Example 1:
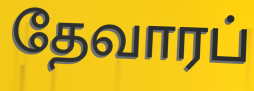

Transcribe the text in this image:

தேவாரப்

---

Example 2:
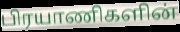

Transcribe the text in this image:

பிரயாணிகளின்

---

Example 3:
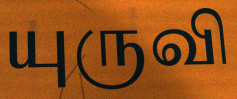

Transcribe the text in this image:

யுருவி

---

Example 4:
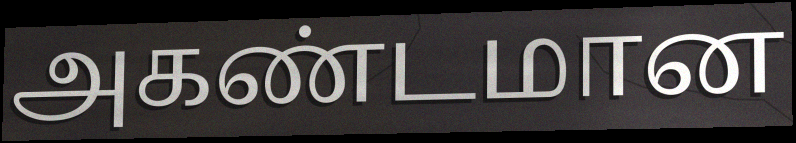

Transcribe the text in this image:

அகண்டமான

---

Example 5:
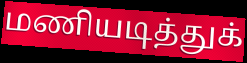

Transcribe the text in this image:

மணியடித்துக்